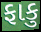
ફાકુ